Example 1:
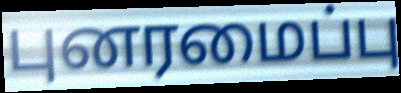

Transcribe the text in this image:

புனரமைப்பு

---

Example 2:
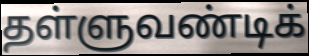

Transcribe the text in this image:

தள்ளுவண்டிக்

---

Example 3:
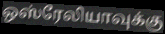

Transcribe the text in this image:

ஒஸ்ரேலியாவுக்கு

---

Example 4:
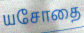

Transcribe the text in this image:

யசோதை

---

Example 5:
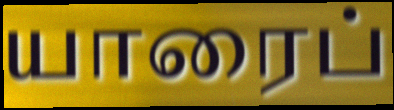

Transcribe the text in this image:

யாரைப்